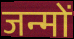
जन्मों